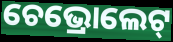
ଚେଭ୍ରୋଲେଟ୍